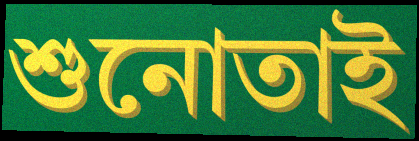
শুনোতাই